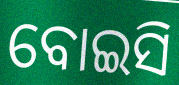
ବୋଇସି